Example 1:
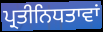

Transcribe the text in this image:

ਪ੍ਰਤੀਨਿਧਤਾਵਾਂ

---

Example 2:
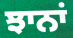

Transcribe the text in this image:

ਝਾਨਾਂ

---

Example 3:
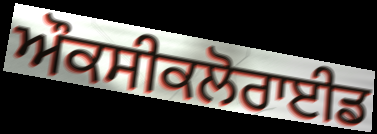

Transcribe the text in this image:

ਔਕਸੀਕਲੋਰਾਈਡ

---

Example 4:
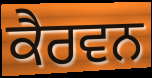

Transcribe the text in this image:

ਕੈਰਵਨ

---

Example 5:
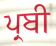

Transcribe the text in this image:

ਪ੍ਰਬੀ